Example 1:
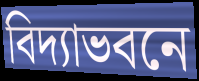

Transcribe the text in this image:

বিদ্যাভবনে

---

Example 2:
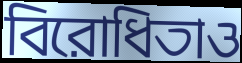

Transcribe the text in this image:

বিরোধিতাও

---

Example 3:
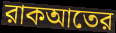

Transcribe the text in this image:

রাকআতের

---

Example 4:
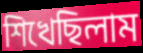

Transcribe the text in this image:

শিখেছিলাম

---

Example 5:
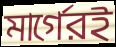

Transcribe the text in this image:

মার্গেরই